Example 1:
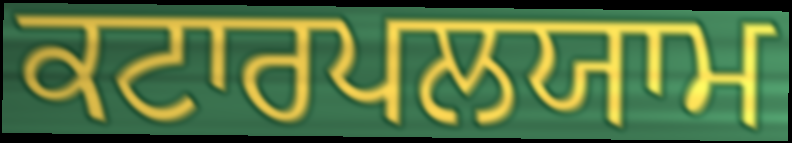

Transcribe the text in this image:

ਕਟਾਰਪਲਯਾਮ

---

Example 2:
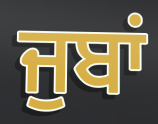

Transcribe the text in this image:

ਜੁਬਾਂ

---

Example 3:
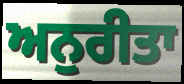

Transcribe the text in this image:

ਅਨੁਰੀਤਾ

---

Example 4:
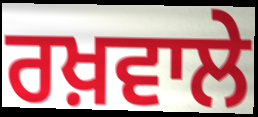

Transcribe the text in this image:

ਰਖ਼ਵਾਲੇ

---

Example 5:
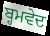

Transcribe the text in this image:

ਬ੍ਹਮਵੇਦ